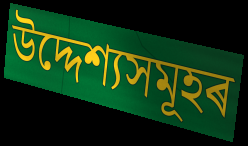
উদ্দেশ্যসমূহৰ